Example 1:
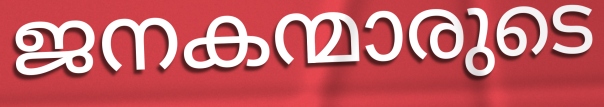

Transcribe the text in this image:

ജനകന്മാരുടെ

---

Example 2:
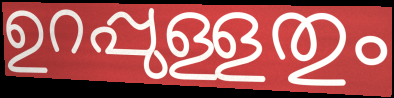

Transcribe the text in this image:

ഉറപ്പുള്ളതും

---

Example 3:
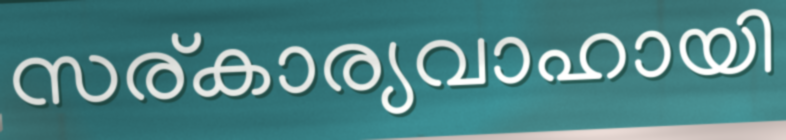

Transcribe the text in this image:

സര്കാര്യവാഹായി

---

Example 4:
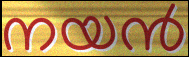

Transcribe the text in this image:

നയൻ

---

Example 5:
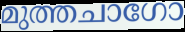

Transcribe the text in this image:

മുത്തചാഗോ